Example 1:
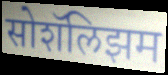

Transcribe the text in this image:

सोशॅलिझम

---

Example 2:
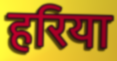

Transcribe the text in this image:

हरिया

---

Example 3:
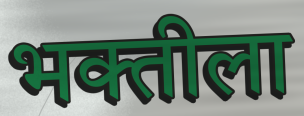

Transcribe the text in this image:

भक्तीला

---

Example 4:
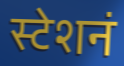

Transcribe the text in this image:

स्टेशनं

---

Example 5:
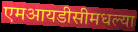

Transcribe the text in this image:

एमआयडीसीमधल्या